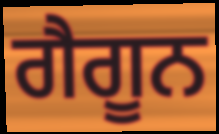
ਗੈਗੂਨ